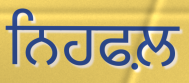
ਨਿਹਫਲ਼